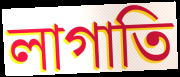
লাগাতি